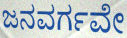
ಜನವರ್ಗವೇ